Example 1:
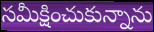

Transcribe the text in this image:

సమీక్షించుకున్నాను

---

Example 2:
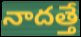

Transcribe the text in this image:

నాదత్తే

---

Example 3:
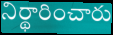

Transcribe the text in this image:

నిర్థారించారు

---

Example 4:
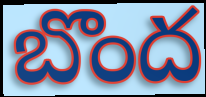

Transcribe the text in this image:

బొంద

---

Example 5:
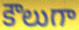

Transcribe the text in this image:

కౌలుగా